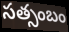
సత్సంబం